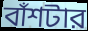
বাঁশটার